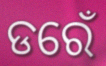
ଡରେଁ